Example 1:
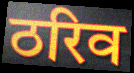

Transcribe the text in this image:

ठरिव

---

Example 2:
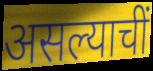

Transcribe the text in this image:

असल्याचीं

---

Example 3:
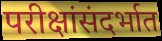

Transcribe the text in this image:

परीक्षांसंदर्भात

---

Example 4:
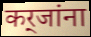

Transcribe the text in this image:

कर्जांना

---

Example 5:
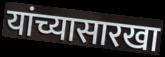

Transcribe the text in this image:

यांच्यासारखा